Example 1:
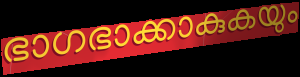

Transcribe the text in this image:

ഭാഗഭാക്കാകുകയും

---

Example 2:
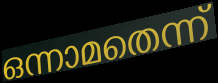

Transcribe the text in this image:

ഒന്നാമതെന്ന്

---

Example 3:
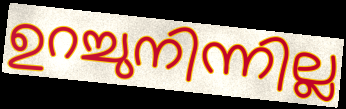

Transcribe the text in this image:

ഉറച്ചുനിന്നില്ല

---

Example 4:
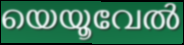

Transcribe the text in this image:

യെയൂവേൽ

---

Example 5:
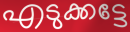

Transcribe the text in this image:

എടുക്കട്ടേ